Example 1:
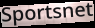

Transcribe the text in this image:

Sportsnet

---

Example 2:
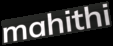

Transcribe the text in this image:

mahithi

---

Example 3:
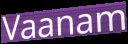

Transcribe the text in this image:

Vaanam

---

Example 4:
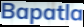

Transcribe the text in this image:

Bapatla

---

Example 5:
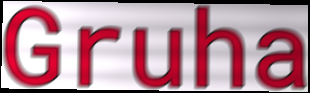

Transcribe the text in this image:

Gruha